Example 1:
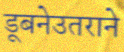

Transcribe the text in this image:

डूबनेउतराने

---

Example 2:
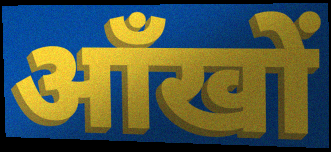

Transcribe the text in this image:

ऑंखों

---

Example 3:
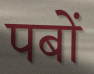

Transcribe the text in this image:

पबों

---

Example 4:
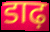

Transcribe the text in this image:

डाढ़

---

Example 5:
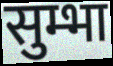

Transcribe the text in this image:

सुम्भा